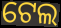
ଟେଲ